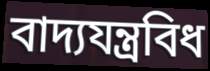
বাদ্যযন্ত্ৰবিধ